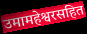
उमामहेश्वरसहित